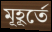
মূহূর্তে